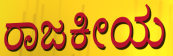
ರಾಜಕೀಯ